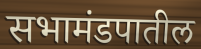
सभामंडपातील